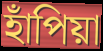
হাঁপিয়া